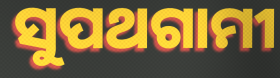
ସୁପଥଗାମୀ